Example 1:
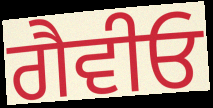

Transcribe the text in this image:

ਗੈਵੀਓ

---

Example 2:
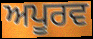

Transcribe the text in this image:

ਅਪੂਰਵ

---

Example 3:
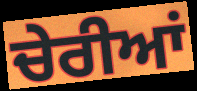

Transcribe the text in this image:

ਚੇਰੀਆਂ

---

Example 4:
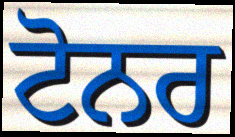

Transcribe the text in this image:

ਟੋਨਰ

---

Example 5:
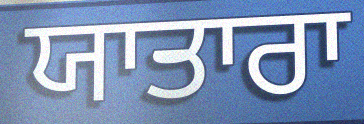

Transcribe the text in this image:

ਯਾਤਾਰਾ